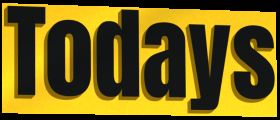
Todays